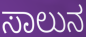
ಸಾಲುನ